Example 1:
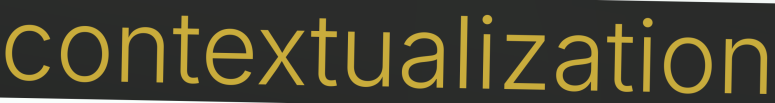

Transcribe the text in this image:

contextualization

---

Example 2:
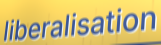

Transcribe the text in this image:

liberalisation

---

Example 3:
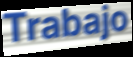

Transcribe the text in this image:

Trabajo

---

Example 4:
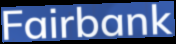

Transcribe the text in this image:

Fairbank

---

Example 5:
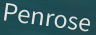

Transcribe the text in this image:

Penrose